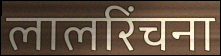
लालरिंचना